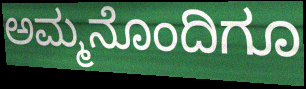
ಅಮ್ಮನೊಂದಿಗೂ